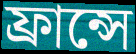
ফ্ৰান্সে